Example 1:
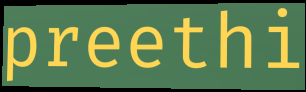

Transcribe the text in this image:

preethi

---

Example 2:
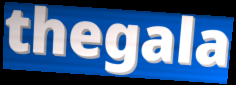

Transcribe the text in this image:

thegala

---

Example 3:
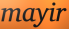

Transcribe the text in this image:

mayir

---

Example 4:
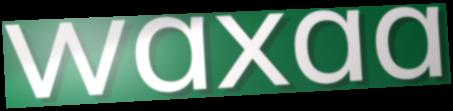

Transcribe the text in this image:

waxaa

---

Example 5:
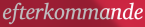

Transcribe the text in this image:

efterkommande